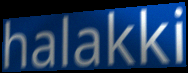
halakki